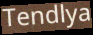
Tendlya